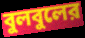
বুলবুলের